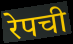
रेपची